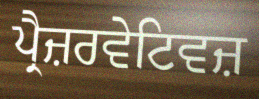
ਪ੍ਰੈਜ਼ਰਵੇਟਿਵਜ਼